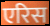
एरिस